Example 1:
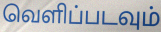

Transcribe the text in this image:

வெளிப்படவும்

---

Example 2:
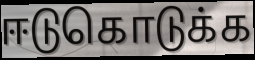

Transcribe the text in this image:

ஈடுகொடுக்க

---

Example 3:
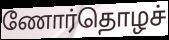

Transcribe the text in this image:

ணோர்தொழச்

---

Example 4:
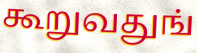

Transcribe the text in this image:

கூறுவதுங்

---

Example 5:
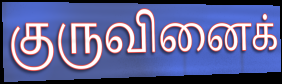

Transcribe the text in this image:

குருவினைக்